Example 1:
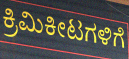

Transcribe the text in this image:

ಕ್ರಿಮಿಕೀಟಗಳಿಗೆ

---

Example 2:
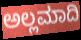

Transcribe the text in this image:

ಅಲ್ಲಮಾದಿ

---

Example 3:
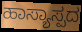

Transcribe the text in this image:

ಹಾಸ್ಯಾಸ್ಪದ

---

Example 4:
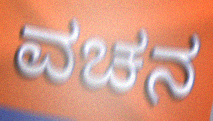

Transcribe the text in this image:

ವಚನ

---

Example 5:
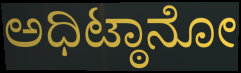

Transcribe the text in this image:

ಅಧಿಟ್ಠಾನೋ